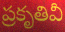
ప్రకృతివీ